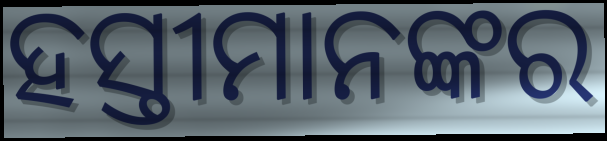
ହସ୍ତୀମାନଙ୍କର